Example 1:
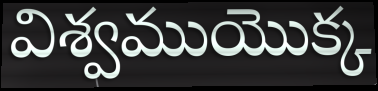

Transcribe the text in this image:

విశ్వముయొక్క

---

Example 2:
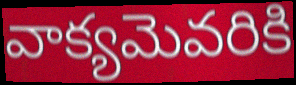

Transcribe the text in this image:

వాక్యమెవరికి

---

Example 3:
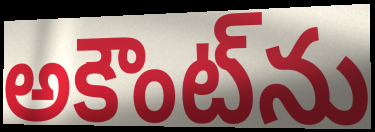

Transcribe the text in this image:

అకౌంట్‌ను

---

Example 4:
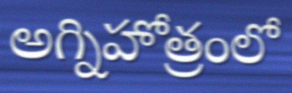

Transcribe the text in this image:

అగ్నిహోత్రంలో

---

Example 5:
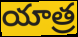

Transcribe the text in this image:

యాత్ర